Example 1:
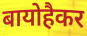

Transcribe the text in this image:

बायोहैकर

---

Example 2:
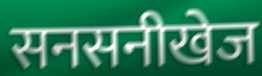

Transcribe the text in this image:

सनसनीखेज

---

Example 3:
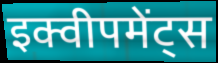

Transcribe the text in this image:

इक्वीपमेंट्स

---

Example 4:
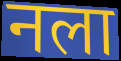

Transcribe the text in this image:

नला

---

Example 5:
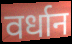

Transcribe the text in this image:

वर्धान